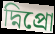
দ্নিপ্রো